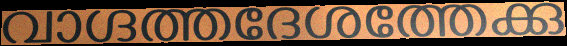
വാഗ്ദത്തദേശത്തേക്കു